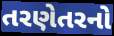
તરણેતરનો